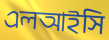
এলআইসি